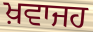
ਖ਼ਵਾਜਹ